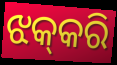
ଝକ୍‌କରି